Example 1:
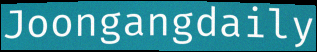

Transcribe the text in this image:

Joongangdaily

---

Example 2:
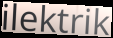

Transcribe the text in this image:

ilektrik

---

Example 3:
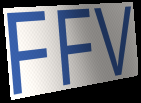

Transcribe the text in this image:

FFV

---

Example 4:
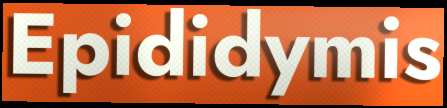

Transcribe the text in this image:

Epididymis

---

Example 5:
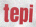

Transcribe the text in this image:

tepi